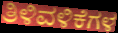
ತಿಳಿವಳಿಕೆಗಳ